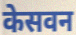
केसवन